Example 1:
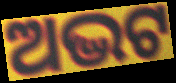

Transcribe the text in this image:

ଅଦ୍ଭଟ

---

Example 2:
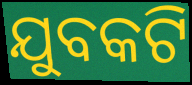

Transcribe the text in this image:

ଯୁବକଟି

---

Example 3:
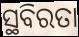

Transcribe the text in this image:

ସ୍ଥବିରତା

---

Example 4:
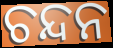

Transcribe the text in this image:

ଚନ୍ଦନ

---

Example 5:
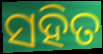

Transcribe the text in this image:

ସହିତ